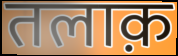
तलाक़